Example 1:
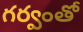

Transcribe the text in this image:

గర్వంతో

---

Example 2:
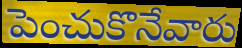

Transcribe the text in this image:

పెంచుకొనేవారు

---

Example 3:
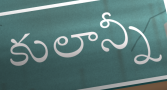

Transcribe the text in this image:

కులాన్నీ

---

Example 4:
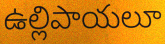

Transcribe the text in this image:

ఉల్లిపాయలూ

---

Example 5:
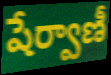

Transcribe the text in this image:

షేర్వాణీ